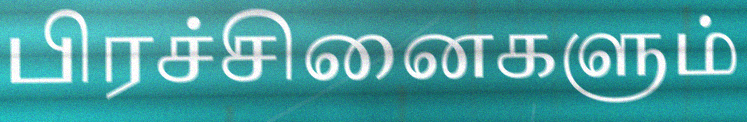
பிரச்சினைகளும்